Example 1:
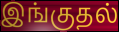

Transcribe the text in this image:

இங்குதல்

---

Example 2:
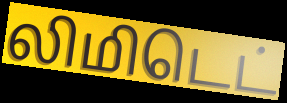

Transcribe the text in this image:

லிமிடெட்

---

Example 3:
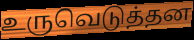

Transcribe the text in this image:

உருவெடுத்தன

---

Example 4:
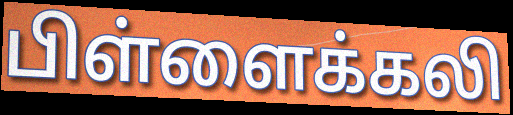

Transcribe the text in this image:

பிள்ளைக்கலி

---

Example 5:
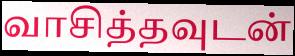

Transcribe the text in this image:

வாசித்தவுடன்